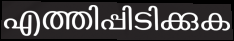
എത്തിപ്പിടിക്കുക